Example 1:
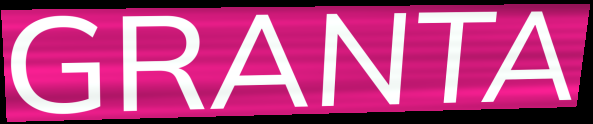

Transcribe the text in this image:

GRANTA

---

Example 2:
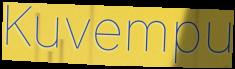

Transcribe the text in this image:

Kuvempu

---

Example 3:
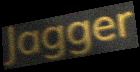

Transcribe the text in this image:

Jagger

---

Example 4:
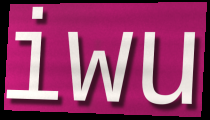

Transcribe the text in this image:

iwu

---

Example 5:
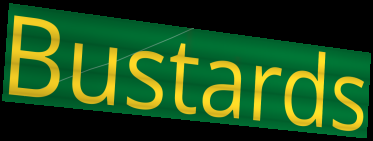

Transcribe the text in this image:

Bustards